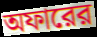
অফারের